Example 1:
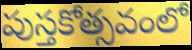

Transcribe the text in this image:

పుస్తకోత్సవంలో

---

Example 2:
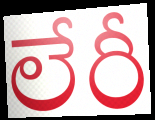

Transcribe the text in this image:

లేరీ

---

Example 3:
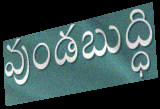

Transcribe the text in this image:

వుండబుద్ధి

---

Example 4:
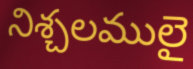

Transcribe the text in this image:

నిశ్చలములై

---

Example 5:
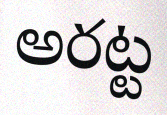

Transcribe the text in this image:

అరట్ట